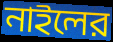
নাইলের